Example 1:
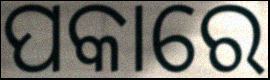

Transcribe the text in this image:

ପକାରେ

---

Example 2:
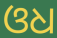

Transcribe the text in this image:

ଓଧ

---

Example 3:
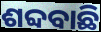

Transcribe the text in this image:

ଶବ୍ଦବାଛି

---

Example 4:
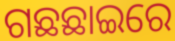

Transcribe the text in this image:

ଗଛଛାଇରେ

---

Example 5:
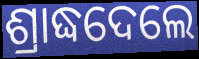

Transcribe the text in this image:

ଶ୍ରାଦ୍ଧଦେଲେ